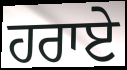
ਹਰਾਏ